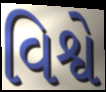
વિશ્વે